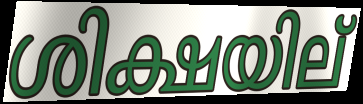
ശിക്ഷയില്